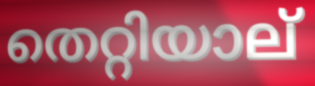
തെറ്റിയാല്